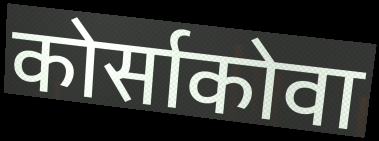
कोर्साकोवा